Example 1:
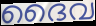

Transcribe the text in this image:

ദൈവ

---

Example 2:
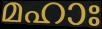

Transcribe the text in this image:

മഹാഃ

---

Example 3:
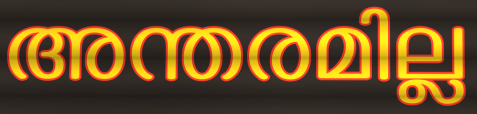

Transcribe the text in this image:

അന്തരമില്ല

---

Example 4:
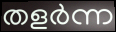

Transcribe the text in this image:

തളർന്ന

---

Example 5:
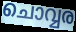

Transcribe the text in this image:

ചൊവ്വര